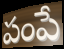
పంపే